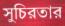
সুচিরতার